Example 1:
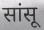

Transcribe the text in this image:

सांसू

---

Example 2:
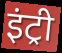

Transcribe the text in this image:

इंट्री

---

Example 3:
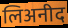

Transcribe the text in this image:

लिअनीद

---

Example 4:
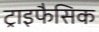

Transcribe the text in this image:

ट्राइफैसिक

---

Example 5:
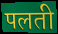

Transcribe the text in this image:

पलती